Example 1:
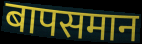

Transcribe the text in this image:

बापसमान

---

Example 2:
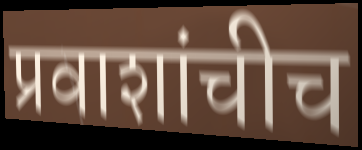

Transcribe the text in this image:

प्रवाशांचीच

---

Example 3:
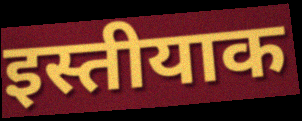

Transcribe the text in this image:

इस्तीयाक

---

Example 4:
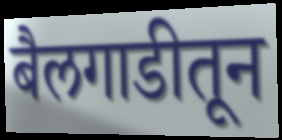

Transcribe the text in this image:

बैलगाडीतून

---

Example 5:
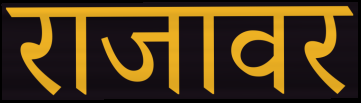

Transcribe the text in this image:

राजावर